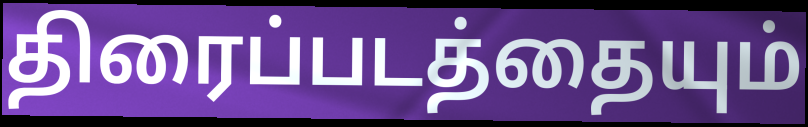
திரைப்படத்தையும்